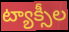
ట్యాక్సీల